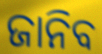
ଜାନିବ